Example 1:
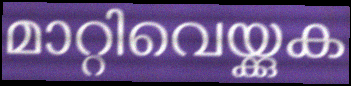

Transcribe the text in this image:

മാറ്റിവെയ്ക്കുക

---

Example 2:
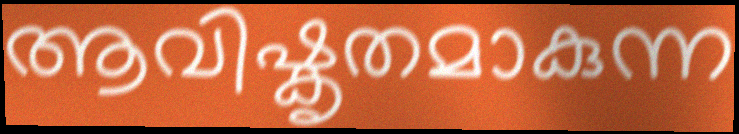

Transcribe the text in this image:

ആവിഷ്കൃതമാകുന്ന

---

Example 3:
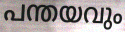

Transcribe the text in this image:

പന്തയവും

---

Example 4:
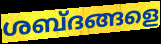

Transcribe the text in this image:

ശബ്ദങ്ങളെ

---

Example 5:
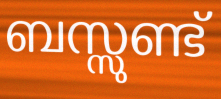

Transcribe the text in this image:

ബസ്സുണ്ട്